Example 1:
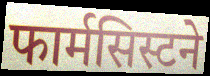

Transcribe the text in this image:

फार्मसिस्टने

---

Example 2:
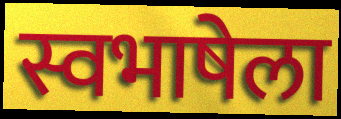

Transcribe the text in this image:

स्वभाषेला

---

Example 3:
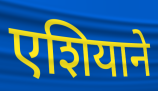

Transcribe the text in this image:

एशियाने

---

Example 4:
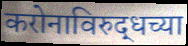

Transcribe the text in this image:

करोनाविरुद्धच्या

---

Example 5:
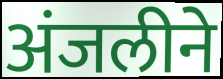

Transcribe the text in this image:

अंजलीने